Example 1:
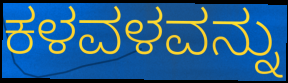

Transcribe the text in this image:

ಕಳವಳವನ್ನು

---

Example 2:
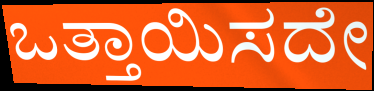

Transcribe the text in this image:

ಒತ್ತಾಯಿಸದೇ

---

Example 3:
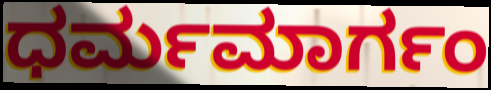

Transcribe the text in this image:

ಧರ್ಮಮಾರ್ಗಂ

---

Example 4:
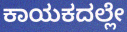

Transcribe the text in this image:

ಕಾಯಕದಲ್ಲೇ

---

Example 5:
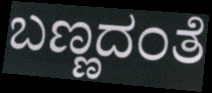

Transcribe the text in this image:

ಬಣ್ಣದಂತೆ